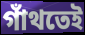
গাঁথতেই